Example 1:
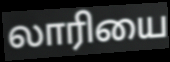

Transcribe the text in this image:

லாரியை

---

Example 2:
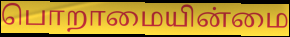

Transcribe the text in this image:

பொறாமையின்மை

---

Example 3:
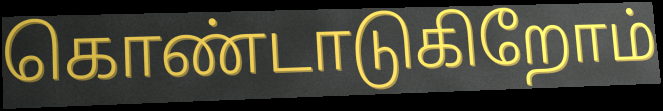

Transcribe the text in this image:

கொண்டாடுகிறோம்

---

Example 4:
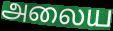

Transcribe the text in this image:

அலைய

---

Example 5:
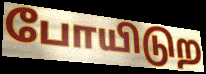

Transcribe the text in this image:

போயிடுற